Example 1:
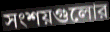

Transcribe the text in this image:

সংশয়গুলোর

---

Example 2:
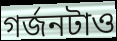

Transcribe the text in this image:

গর্জনটাও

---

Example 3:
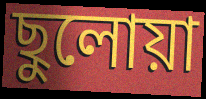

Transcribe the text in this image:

ছুলোয়া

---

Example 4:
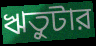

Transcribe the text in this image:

ঋতুটার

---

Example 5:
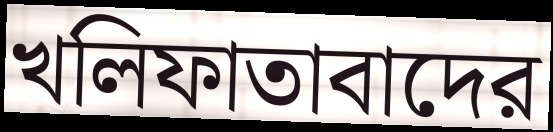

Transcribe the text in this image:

খলিফাতাবাদের